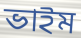
ভাইম